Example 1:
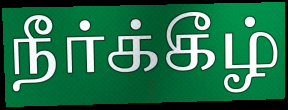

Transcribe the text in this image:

நீர்க்கீழ்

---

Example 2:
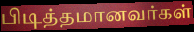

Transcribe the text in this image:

பிடித்தமானவர்கள்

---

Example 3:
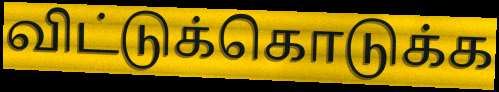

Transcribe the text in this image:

விட்டுக்கொடுக்க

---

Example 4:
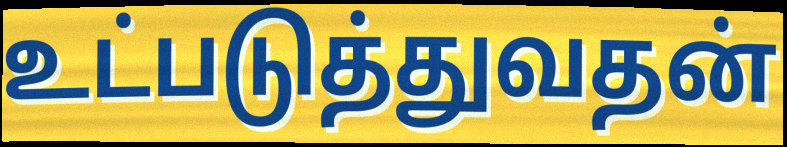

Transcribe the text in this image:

உட்படுத்துவதன்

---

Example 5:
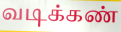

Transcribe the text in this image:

வடிக்கண்